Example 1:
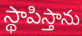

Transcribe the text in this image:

స్థాపిస్తాను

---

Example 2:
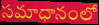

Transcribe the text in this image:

సమాధానంలో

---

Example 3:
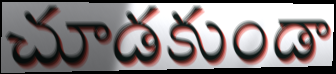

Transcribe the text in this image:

చూడకుండా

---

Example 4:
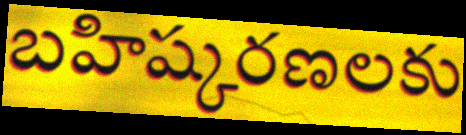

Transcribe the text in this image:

బహిష్కరణలకు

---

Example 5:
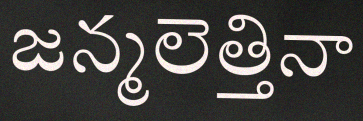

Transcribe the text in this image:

జన్మలెత్తినా